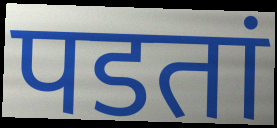
पडतां